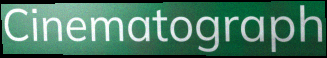
Cinematograph